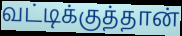
வட்டிக்குத்தான்